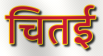
चितई